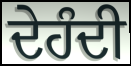
ਦੇਹੰਦੀ